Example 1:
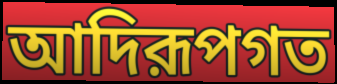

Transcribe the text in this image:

আদিরূপগত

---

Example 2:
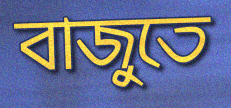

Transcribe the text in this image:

বাজুতে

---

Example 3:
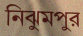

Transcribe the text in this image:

নিঝুমপুর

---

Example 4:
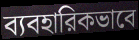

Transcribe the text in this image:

ব্যবহারিকভাবে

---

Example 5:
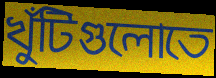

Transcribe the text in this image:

খুঁটিগুলোতে